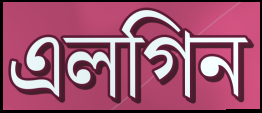
এলগিন